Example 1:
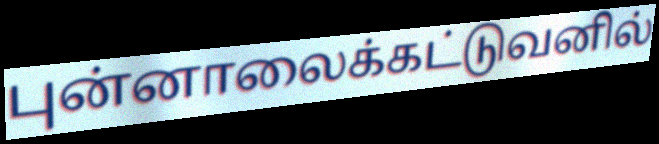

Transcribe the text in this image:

புன்னாலைக்கட்டுவனில்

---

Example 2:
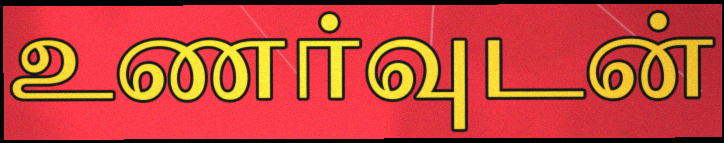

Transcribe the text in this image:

உணர்வுடன்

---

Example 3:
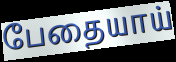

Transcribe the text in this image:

பேதையாய்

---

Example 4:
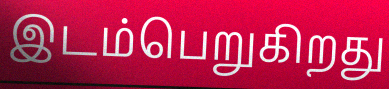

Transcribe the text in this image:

இடம்பெறுகிறது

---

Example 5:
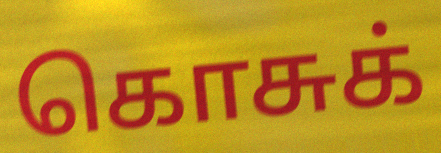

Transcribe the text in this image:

கொசுக்